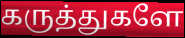
கருத்துகளே